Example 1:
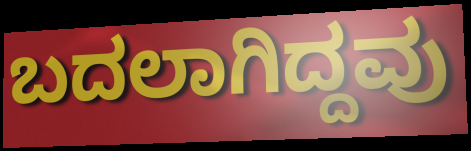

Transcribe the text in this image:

ಬದಲಾಗಿದ್ದವು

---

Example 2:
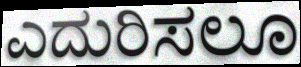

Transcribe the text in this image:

ಎದುರಿಸಲೂ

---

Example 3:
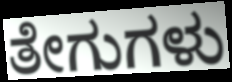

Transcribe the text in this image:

ತೇಗುಗಳು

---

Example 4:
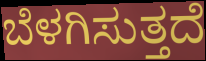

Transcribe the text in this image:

ಬೆಳಗಿಸುತ್ತದೆ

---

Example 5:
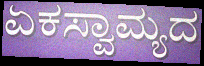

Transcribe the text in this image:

ಏಕಸ್ವಾಮ್ಯದ